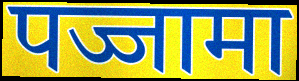
पज्जामा